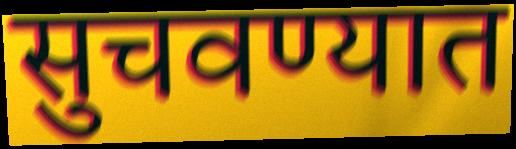
सुचवण्यात